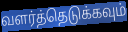
வளர்த்தெடுக்கவும்